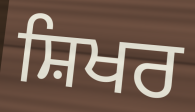
ਸ਼ਿਖਰ